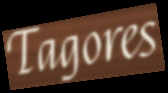
Tagores